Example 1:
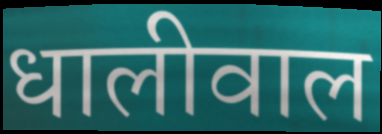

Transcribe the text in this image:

धालीवाल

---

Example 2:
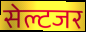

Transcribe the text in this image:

सेल्टजर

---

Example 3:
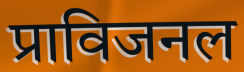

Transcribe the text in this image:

प्राविजनल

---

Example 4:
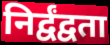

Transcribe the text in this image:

निर्द्वंद्वता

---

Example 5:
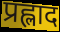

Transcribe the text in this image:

प्रह्लाद